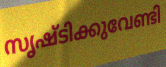
സൃഷ്ടിക്കുവേണ്ടി